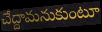
చేద్దామనుకుంటూ